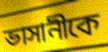
ভাসানীকে